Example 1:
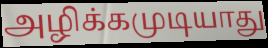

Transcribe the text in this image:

அழிக்கமுடியாது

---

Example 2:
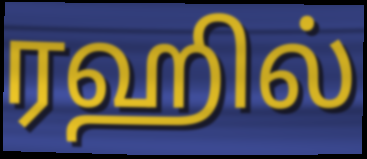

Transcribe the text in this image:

ரஹில்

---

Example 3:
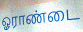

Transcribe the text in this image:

ஓராண்டை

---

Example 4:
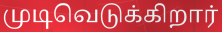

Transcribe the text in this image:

முடிவெடுக்கிறார்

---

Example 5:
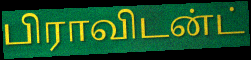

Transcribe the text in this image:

பிராவிடன்ட்